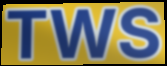
TWS